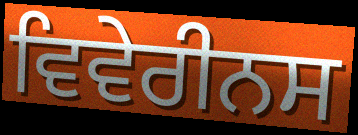
ਵਿਵੇਰੀਨਸ